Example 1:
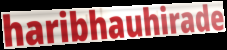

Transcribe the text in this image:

haribhauhirade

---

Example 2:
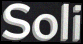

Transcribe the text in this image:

Soli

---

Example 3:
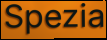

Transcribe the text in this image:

Spezia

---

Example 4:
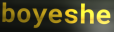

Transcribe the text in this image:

boyeshe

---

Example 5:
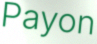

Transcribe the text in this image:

Payon